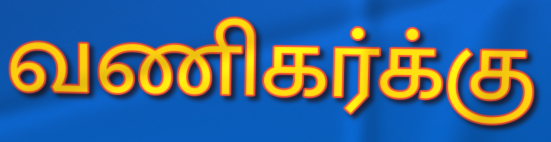
வணிகர்க்கு